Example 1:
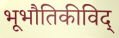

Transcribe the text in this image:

भूभौतिकीविद्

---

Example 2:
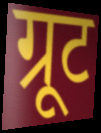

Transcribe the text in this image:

ग्रूट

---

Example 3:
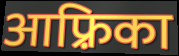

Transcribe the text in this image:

आफ़्रिका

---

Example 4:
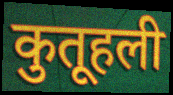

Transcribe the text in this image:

कुतूहली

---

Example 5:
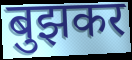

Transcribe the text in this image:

बुझकर